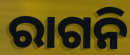
ରାଗନି